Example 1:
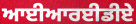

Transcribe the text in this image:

ਆਈਆਰਈਡੀਏ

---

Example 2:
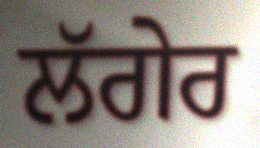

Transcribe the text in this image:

ਲੱਗੇਰ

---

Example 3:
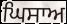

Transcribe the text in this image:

ਘਿਸਾਅ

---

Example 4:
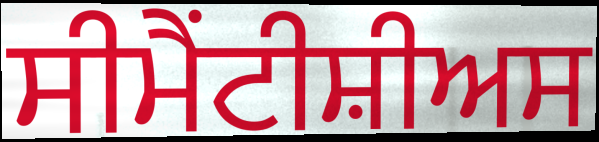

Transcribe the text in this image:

ਸੀਮੈਂਟੀਸ਼ੀਅਸ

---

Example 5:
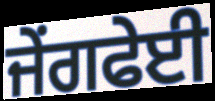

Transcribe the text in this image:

ਜੇਂਗਫੇਈ